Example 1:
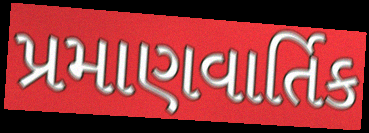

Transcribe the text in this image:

પ્રમાણવાર્તિક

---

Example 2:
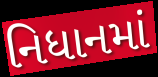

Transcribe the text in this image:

નિધાનમાં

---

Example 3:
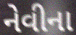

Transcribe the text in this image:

નેવીના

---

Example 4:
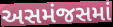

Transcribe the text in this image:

અસમંજસમાં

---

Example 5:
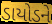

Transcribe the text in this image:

ડાયોડને